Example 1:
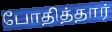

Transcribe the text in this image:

போதித்தார்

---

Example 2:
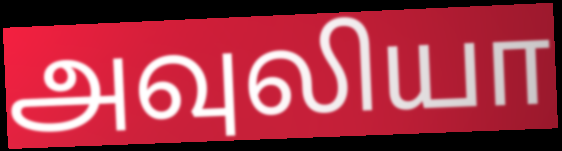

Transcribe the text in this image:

அவுலியா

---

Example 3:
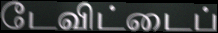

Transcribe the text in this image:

டேவிட்டைப்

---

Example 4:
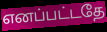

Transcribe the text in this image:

எனப்பட்டதே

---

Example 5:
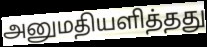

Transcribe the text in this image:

அனுமதியளித்தது